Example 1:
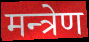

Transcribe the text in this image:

मन्त्रेण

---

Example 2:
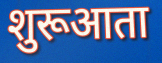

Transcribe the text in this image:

शुरूआता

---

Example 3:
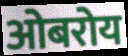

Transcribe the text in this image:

ओबरोय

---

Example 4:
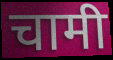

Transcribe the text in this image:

चामी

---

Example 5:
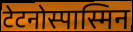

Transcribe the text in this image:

टेटनोस्पास्मिन